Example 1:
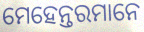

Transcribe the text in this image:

ମେହେନ୍ତରମାନେ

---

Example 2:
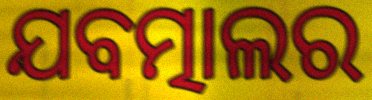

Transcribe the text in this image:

ଯବତ୍ମାଲର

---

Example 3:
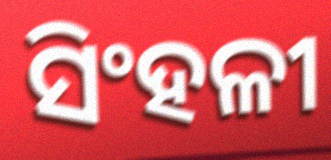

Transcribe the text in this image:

ସିଂହଳୀ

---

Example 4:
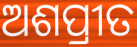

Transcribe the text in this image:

ଅଶପ୍ରୀତ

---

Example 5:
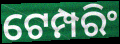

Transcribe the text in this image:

ଟେମ୍ପରିଂ